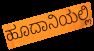
ಹೂದಾನಿಯಲ್ಲಿ